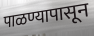
पाळण्यापासून